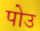
पोउ